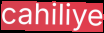
cahiliye